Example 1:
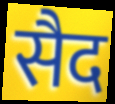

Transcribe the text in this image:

सैद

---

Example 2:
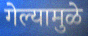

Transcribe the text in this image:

गेल्यामुळे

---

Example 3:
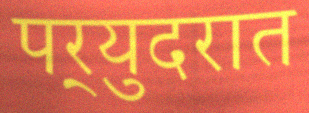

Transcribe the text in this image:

पर्युदरात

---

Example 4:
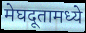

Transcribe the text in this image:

मेघदूतामध्ये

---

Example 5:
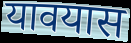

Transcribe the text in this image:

यावयास